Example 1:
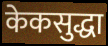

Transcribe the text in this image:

केकसुद्धा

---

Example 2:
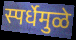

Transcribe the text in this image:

स्पर्धेमुळे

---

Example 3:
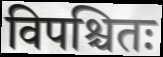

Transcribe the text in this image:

विपश्चितः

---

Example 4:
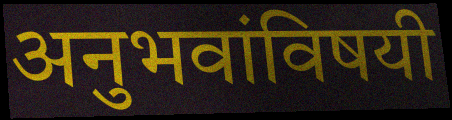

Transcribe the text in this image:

अनुभवांविषयी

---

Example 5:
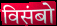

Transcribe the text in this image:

विसंबो